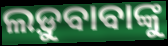
ଲଡ଼ୁବାବାଙ୍କୁ